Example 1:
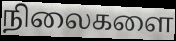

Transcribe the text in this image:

நிலைகளை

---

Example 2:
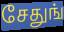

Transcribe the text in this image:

சேதுங்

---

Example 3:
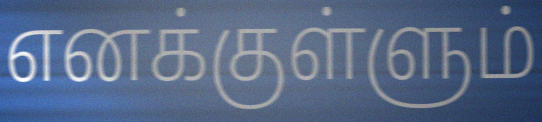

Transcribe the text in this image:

எனக்குள்ளும்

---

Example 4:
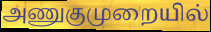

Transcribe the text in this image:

அணுகுமுறையில்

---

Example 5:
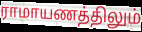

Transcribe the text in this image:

ராமாயணத்திலும்